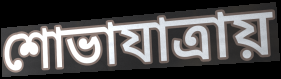
শোভাযাত্রায়